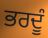
ਭਰਦੂੰ